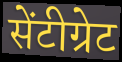
सेंटीग्रेट